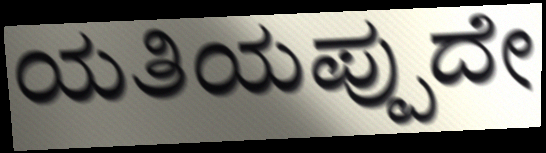
ಯತಿಯಪ್ಪುದೇ